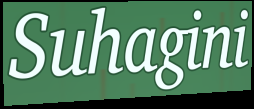
Suhagini